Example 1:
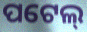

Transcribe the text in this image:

ପଟେଲ୍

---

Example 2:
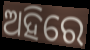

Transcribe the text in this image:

ଅହିରେ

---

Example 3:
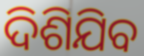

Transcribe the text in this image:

ଦିଶିଯିବ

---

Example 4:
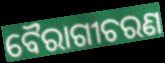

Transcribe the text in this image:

ବୈରାଗୀଚରଣ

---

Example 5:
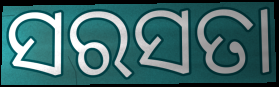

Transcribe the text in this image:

ସରସତା